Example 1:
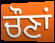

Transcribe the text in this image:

ਚੌਣਾਂ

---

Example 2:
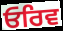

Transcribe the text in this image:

ਓਰਿਵ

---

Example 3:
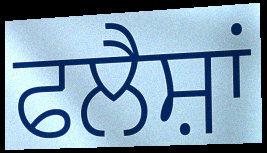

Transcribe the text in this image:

ਫਲੈਸ਼ਾਂ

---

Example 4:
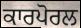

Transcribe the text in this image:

ਕਾਰਪੋਰਲ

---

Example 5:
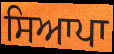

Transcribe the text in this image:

ਸਿਆਪਾ